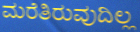
ಮರೆತಿರುವುದಿಲ್ಲ